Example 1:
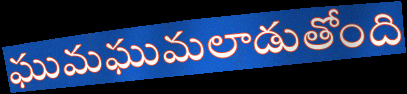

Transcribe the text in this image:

ఘుమఘుమలాడుతోంది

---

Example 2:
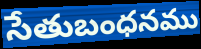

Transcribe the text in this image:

సేతుబంధనము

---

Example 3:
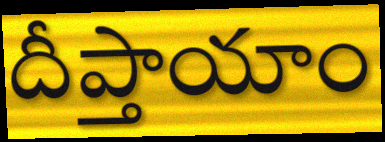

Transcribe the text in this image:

దీప్తాయాం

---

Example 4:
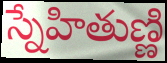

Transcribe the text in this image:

స్నేహితుణ్ణి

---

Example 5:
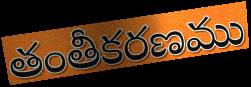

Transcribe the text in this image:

తంతీకరణము